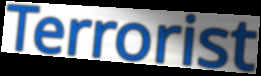
Terrorist